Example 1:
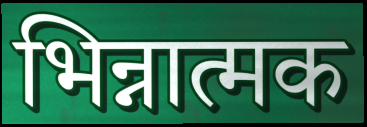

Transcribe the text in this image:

भिन्नात्मक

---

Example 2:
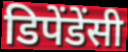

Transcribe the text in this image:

डिपेंडेंसी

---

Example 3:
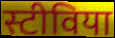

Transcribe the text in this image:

स्‍टीविया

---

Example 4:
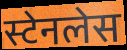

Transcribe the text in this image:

स्टेनलेस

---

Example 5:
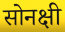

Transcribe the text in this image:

सोनक्षी